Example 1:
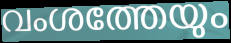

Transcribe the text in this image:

വംശത്തേയും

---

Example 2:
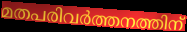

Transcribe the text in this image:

മതപരിവർത്തനത്തിന്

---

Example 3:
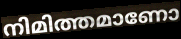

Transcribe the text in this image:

നിമിത്തമാണോ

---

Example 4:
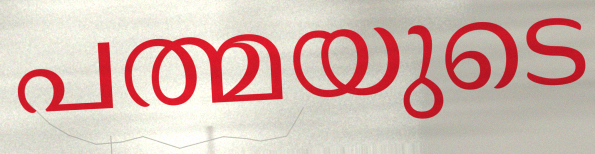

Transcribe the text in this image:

പത്മയുടെ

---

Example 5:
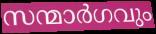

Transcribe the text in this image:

സന്മാർഗവും